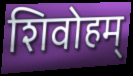
शिवोहम्